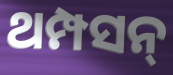
ଥମ୍ପସନ୍